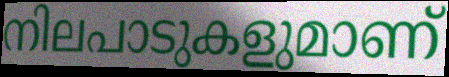
നിലപാടുകളുമാണ്